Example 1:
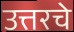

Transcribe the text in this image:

उत्तरचे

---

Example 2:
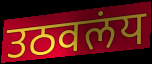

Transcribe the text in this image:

उठवलंय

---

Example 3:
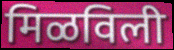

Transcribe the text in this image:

मिळविली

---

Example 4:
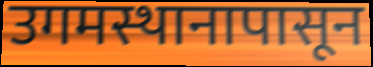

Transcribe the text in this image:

उगमस्थानापासून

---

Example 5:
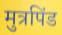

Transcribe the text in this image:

मुत्रपिंड